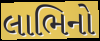
લાભિનો